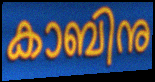
കാബിനു